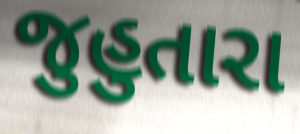
જુહુતારા